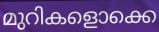
മുറികളൊക്കെ